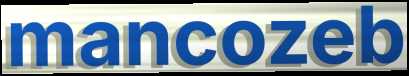
mancozeb